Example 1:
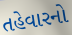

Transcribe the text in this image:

તહેવારનો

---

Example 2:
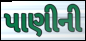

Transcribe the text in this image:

પાણીની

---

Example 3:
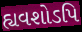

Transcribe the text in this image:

હ્યવશોઽપિ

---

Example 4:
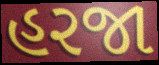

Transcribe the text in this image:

હરજા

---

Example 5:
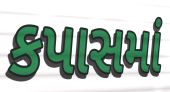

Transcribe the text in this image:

કપાસમાં